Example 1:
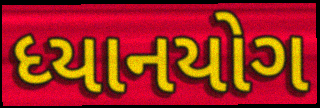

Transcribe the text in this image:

ધ્યાનયોગ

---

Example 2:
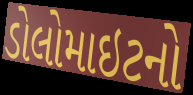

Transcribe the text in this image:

ડોલોમાઇટનો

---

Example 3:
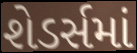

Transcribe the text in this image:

શેડર્સમાં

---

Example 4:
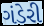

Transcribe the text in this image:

ગંડેરી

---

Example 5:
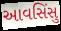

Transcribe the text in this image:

આવસિંસુ